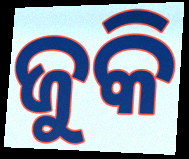
ଜୁକି